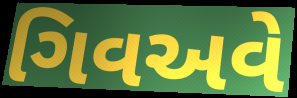
ગિવઅવે